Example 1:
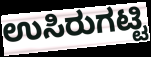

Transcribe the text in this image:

ಉಸಿರುಗಟ್ಟಿ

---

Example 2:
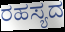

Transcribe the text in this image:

ರಹಸ್ಯದ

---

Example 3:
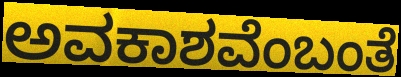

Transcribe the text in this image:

ಅವಕಾಶವೆಂಬಂತೆ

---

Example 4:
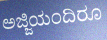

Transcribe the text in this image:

ಅಜ್ಜಿಯಂದಿರೂ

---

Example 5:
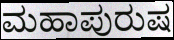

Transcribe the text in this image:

ಮಹಾಪುರುಷ